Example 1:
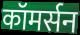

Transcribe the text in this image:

कॉमर्सन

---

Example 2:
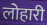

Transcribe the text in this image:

लोहारी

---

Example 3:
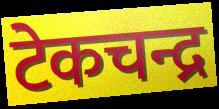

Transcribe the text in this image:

टेकचन्द्र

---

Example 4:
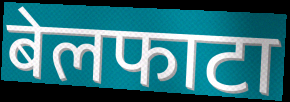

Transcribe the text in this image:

बेलफाटा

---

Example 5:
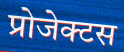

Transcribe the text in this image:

प्रोजेक्‍टस